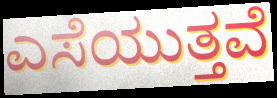
ಎಸೆಯುತ್ತವೆ